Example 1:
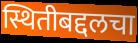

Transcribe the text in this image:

स्थितीबद्दलचा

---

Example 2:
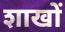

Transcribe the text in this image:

शाखों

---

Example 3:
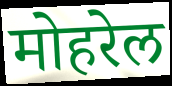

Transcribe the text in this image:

मोहरेल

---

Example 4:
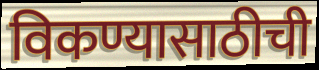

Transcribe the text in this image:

विकण्यासाठीची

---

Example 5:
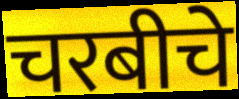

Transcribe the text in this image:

चरबीचे